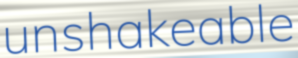
unshakeable